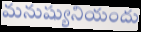
మనుష్యునియందు